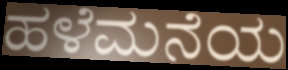
ಹಳೆಮನೆಯ